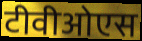
टीवीओएस